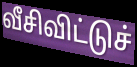
வீசிவிட்டுச்